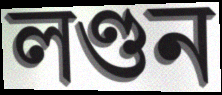
লণ্ডন